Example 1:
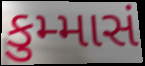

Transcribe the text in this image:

કુમ્માસં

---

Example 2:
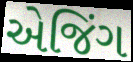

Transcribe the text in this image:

એજિંગ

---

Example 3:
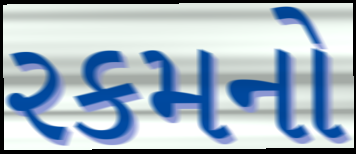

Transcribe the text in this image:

રકમનો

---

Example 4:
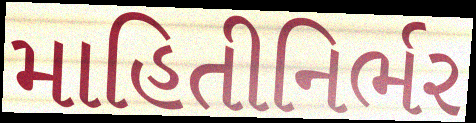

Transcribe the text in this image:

માહિતીનિર્ભર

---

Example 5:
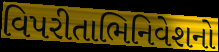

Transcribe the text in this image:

વિપરીતાભિનિવેશનો